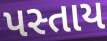
પસ્તાય